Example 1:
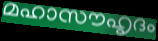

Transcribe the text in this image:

മഹാസൗഹൃദം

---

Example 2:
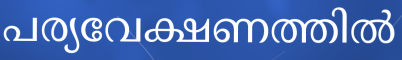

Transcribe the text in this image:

പര്യവേക്ഷണത്തിൽ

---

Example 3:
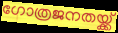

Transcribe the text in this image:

ഗോത്രജനതയ്ക്ക്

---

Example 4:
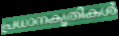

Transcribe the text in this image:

പ്രധാനകൃതികൾ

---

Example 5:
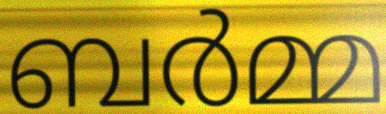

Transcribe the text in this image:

ബർമ്മ